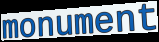
monument